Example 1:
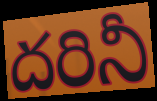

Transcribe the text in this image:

దరినీ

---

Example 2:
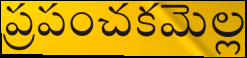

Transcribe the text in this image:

ప్రపంచకమెల్ల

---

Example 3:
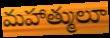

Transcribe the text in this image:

మహాత్ములూ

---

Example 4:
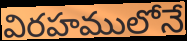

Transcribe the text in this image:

విరహములోనే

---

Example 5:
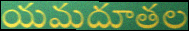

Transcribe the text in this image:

యమదూతల